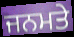
ਜਨਮਤੇ